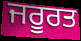
ਜਰੂਰਤ